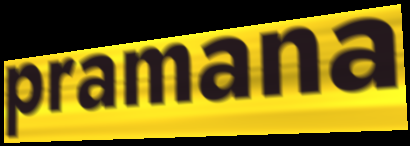
pramana